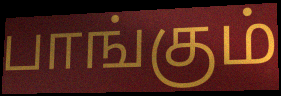
பாங்கும்